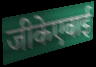
जीकेएवाई